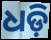
ଧଡ଼ି